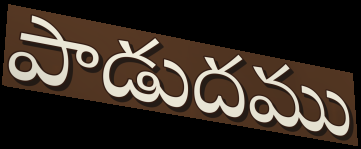
పాడుదము